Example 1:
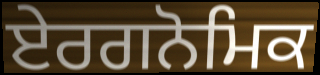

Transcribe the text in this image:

ਏਰਗਨੋਮਿਕ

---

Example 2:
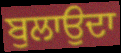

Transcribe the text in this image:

ਬੁਲਾਉਦਾ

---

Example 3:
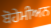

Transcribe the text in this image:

ਬੋਹੇਮੀਅਨ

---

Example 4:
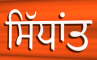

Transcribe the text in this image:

ਸਿੱਧਾਂਤ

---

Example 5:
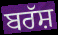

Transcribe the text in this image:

ਬਰੱਸ਼